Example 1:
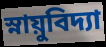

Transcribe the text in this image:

স্নায়ুবিদ্যা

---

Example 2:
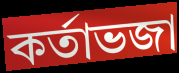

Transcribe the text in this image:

কর্তাভজা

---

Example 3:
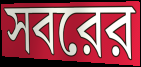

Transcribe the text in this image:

সবরের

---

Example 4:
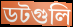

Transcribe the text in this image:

ডটগুলি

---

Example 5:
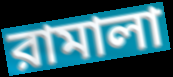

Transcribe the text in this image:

রামালা